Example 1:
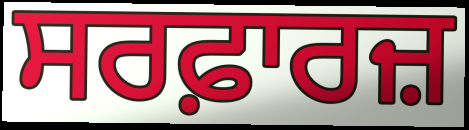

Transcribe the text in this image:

ਸਰਫ਼ਾਰਜ਼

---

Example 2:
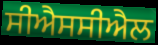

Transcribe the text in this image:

ਸੀਐਸਸੀਐਲ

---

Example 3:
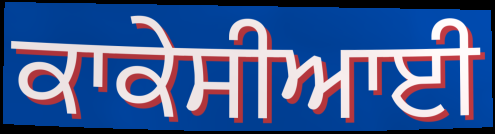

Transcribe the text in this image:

ਕਾਕੇਸੀਆਈ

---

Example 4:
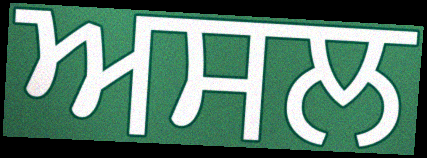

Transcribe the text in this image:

ਅਸਲ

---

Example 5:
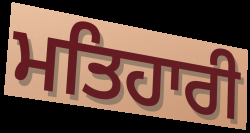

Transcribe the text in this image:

ਮਤਿਹਾਰੀ